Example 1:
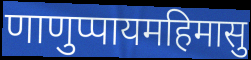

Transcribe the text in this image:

णाणुप्पायमहिमासु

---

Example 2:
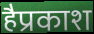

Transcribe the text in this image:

हैप्रकाश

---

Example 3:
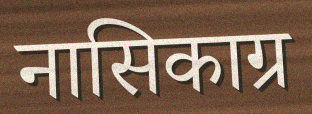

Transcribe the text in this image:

नासिकाग्र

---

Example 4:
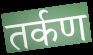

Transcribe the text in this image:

तर्कण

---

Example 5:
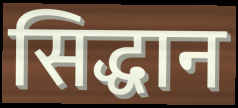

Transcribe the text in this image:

सिद्धान